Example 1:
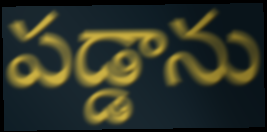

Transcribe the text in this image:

పడ్డాను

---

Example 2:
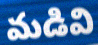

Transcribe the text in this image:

మడివి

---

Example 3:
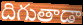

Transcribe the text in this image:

దిగుతాడా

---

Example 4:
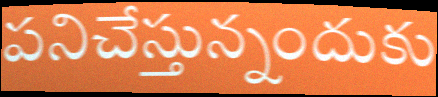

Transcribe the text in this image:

పనిచేస్తున్నందుకు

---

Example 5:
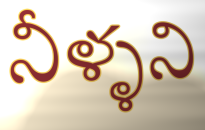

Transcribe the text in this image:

నీళ్ళని